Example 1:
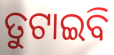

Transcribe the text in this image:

ତୁଟାଇବି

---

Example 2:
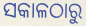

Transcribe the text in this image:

ସକାଳଠାରୁ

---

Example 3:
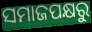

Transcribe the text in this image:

ସମାଜପକ୍ଷରୁ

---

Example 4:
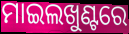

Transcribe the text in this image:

ମାଇଲଖୁଣ୍ଟରେ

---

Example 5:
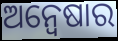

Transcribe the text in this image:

ଅନ୍ବେଷାର